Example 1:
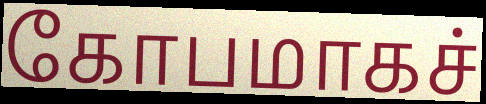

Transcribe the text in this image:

கோபமாகச்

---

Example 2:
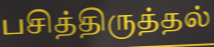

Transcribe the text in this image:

பசித்திருத்தல்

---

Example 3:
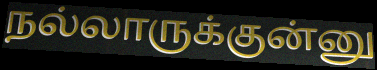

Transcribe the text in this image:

நல்லாருக்குன்னு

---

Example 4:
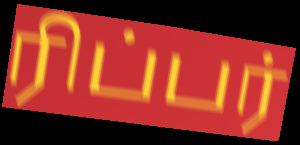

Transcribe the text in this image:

ரிப்பர்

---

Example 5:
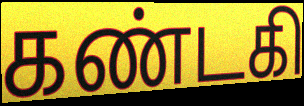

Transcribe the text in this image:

கண்டகி